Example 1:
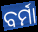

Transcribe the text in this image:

ବର୍ମା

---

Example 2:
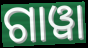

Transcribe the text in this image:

ଗାୱା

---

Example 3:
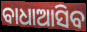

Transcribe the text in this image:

ବାଧାଆସିବ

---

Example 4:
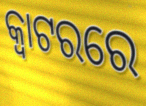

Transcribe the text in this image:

କ୍ୱାଟରରେ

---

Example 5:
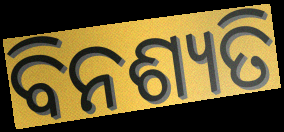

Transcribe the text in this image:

ବିନଶ୍ୟତି